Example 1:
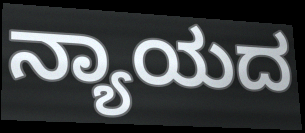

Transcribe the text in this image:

ನ್ಯಾಯದ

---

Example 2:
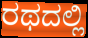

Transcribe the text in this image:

ರಥದಲ್ಲಿ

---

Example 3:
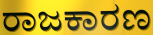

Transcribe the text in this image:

ರಾಜಕಾರಣ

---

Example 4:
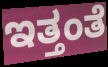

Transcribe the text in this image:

ಇತ್ತಂತೆ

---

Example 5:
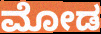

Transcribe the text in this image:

ಮೋಡ